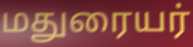
மதுரையர்